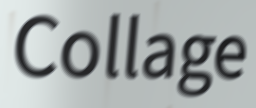
Collage